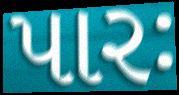
પારઃ